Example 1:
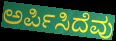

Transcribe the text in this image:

ಅರ್ಪಿಸಿದೆವು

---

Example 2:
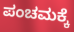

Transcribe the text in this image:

ಪಂಚಮಕ್ಕೆ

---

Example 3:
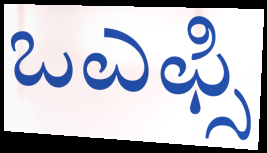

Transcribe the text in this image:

ಒಎಫ್ಸಿ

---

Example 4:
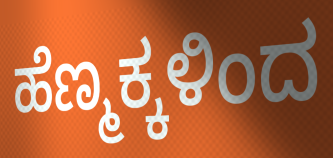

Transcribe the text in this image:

ಹೆಣ್ಮಕ್ಕಳಿಂದ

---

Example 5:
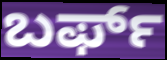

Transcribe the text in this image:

ಬರ್ಫ್